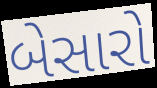
બેસારો